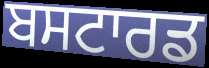
ਬਸਟਾਰਡ